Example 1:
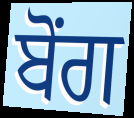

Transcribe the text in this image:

ਬੋਂਗ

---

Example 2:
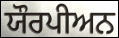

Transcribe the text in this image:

ਯੌਰਪੀਅਨ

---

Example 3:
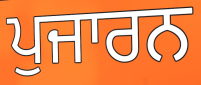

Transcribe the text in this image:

ਪੁਜਾਰਨ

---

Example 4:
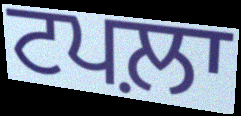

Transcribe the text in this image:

ਟਪਲ਼ਾ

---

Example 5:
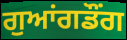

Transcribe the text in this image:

ਗੁਆਂਗਡੌਂਗ